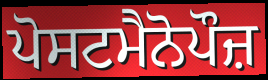
ਪੋਸਟਮੈਨੋਪੌਜ਼